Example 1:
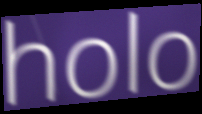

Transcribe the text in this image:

holo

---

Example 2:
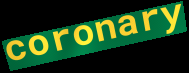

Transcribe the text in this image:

coronary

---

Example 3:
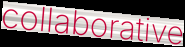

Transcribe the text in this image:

collaborative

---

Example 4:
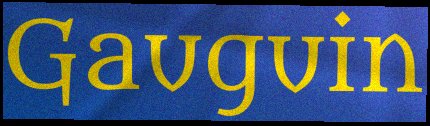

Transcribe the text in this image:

Gauguin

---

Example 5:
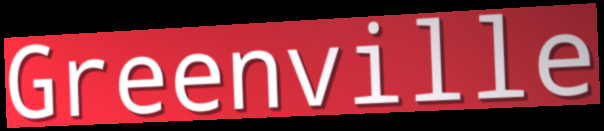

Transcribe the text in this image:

Greenville